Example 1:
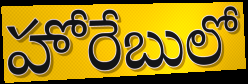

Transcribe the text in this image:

హోరేబులో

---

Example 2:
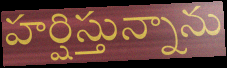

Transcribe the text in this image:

హర్షిస్తున్నాను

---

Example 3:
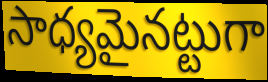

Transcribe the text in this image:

సాధ్యమైనట్టుగా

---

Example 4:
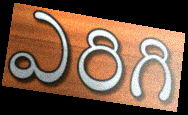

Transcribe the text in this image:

ఎరిగి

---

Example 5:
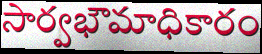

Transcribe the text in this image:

సార్వభౌమాధికారం